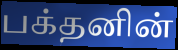
பக்தனின்